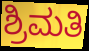
ಶ್ರಿಮತಿ